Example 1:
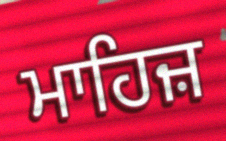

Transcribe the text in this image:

ਮਾਹਿਜ਼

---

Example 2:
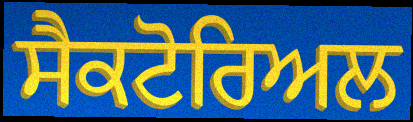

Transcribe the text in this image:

ਸੈਕਟੋਰਿਅਲ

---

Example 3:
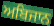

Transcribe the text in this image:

ਅਬਿਜਾਨ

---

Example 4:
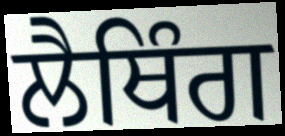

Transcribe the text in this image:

ਲੈਥਿੰਗ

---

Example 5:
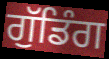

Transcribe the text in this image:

ਗੁੱਡਿੰਗ